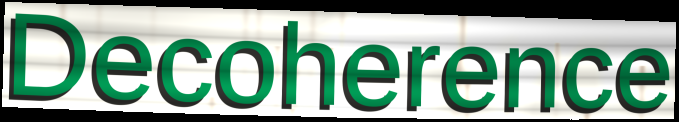
Decoherence